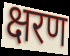
क्षरण